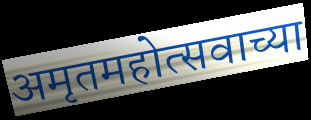
अमृतमहोत्सवाच्या